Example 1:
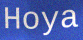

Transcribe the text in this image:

Hoya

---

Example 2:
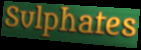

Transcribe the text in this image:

Sulphates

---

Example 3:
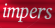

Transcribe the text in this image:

impers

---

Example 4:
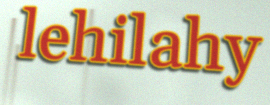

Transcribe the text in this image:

lehilahy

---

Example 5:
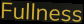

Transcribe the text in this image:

Fullness